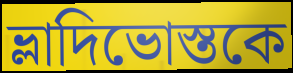
ভ্লাদিভোস্তকে